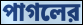
পাগলের